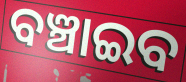
ବଞ୍ଚାଇବ